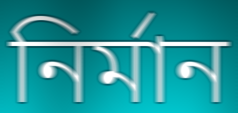
নির্মান